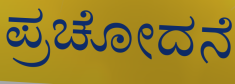
ಪ್ರಚೋದನೆ